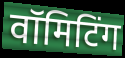
वॉमिटिंग